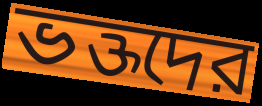
ভক্তদের